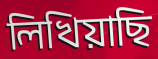
লিখিয়াছি